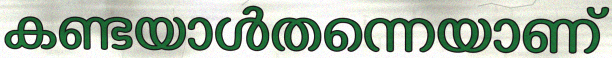
കണ്ടയാൾതന്നെയാണ്